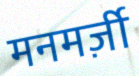
मनमर्ज़ी